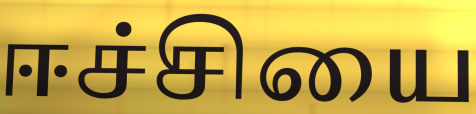
ஈச்சியை